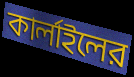
কার্লাইলের